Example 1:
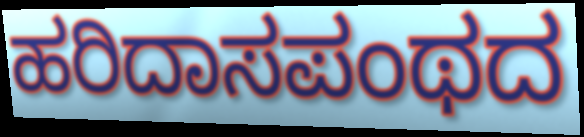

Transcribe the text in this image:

ಹರಿದಾಸಪಂಥದ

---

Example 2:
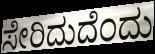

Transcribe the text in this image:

ಸೇರಿದುದೆಂದು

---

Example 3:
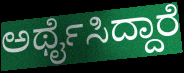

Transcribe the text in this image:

ಅರ್ಥೈಸಿದ್ದಾರೆ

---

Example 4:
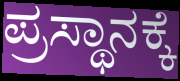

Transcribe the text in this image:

ಪ್ರಸ್ಥಾನಕ್ಕೆ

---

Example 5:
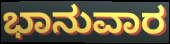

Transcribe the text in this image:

ಭಾನುವಾರ